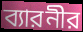
ব্যারনীর